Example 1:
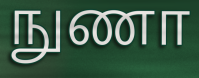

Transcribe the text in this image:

நுணா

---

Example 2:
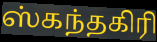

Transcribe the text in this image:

ஸ்கந்தகிரி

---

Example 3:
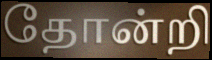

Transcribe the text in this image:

தோன்றி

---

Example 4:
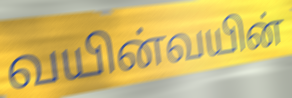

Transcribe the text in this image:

வயின்வயின்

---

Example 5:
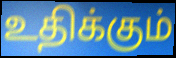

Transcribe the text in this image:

உதிக்கும்